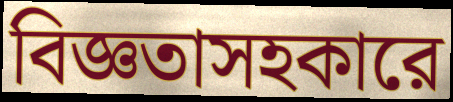
বিজ্ঞতাসহকারে